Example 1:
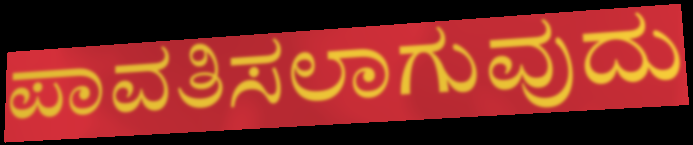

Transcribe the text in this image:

ಪಾವತಿಸಲಾಗುವುದು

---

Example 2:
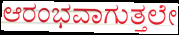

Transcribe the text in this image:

ಆರಂಭವಾಗುತ್ತಲೇ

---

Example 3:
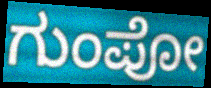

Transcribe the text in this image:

ಗುಂಪೋ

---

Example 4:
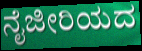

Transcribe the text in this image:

ನೈಜೀರಿಯದ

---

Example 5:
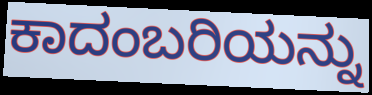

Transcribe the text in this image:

ಕಾದಂಬರಿಯನ್ನು